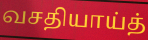
வசதியாய்த்